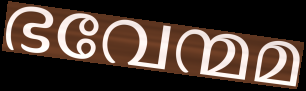
ഭവേന്മമ